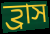
হ্ৰাস